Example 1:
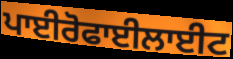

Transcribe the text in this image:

ਪਾਈਰੋਫਾਈਲਾਈਟ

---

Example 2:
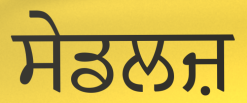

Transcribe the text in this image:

ਸੇਡਲਜ਼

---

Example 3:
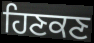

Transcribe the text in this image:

ਹਿਣਕਣ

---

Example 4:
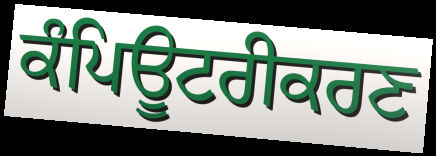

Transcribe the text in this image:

ਕੰਪਿਊਟਰੀਕਰਣ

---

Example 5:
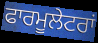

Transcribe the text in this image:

ਫਾਰਮੂਲੇਟਰਾਂ